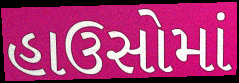
હાઉસોમાં